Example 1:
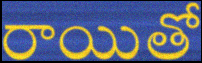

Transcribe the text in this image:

రాయితో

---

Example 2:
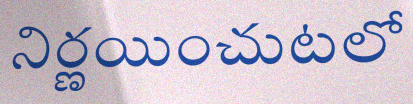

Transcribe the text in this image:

నిర్ణయించుటలో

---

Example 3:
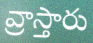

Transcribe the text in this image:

వ్రాస్తారు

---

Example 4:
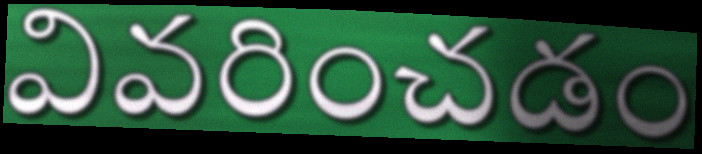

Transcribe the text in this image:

వివరించడం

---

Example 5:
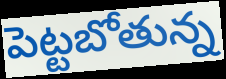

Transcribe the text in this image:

పెట్టబోతున్న